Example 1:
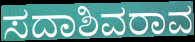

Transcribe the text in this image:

ಸದಾಶಿವರಾವ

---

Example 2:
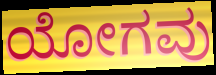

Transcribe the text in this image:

ಯೋಗವು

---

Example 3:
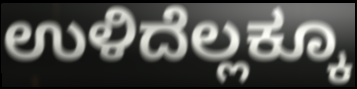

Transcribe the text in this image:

ಉಳಿದೆಲ್ಲಕ್ಕೂ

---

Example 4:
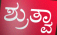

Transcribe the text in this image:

ಶ್ರುತ್ವಾ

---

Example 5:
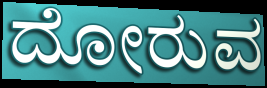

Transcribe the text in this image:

ದೋರುವ